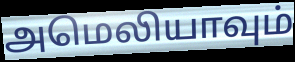
அமெலியாவும்